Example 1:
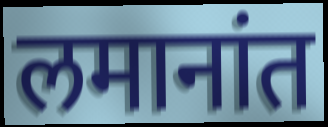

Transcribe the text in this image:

लमानांत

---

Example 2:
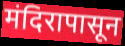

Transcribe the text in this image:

मंदिरापासून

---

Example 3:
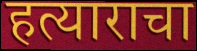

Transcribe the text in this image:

हत्याराचा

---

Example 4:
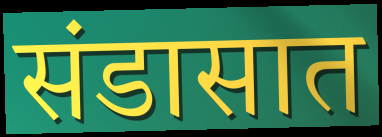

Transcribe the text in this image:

संडासात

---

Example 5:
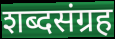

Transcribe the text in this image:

शब्दसंग्रह